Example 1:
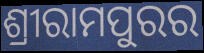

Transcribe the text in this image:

ଶ୍ରୀରାମପୁରର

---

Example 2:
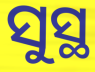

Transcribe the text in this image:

ସୁସ୍ଥ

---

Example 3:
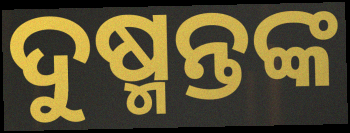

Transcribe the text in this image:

ଦୁଷ୍ମନ୍ତଙ୍କ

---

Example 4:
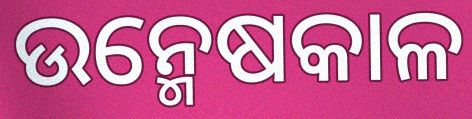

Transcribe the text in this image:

ଉନ୍ମେଷକାଳ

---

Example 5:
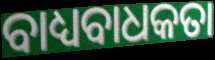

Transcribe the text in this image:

ବାଧ୍ୟବାଧକତା